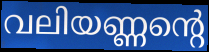
വലിയണ്ണന്റെ